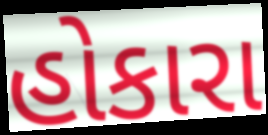
હોકારા